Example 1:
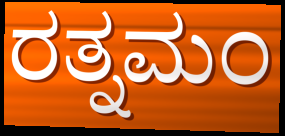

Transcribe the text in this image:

ರತ್ನಮಂ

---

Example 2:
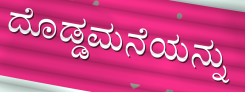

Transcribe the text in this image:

ದೊಡ್ಡಮನೆಯನ್ನು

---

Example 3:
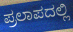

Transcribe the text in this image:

ಪ್ರಲಾಪದಲ್ಲಿ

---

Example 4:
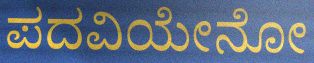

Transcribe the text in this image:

ಪದವಿಯೇನೋ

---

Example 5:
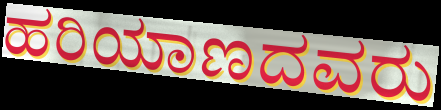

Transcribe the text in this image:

ಹರಿಯಾಣದವರು